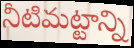
నీటిమట్టాన్ని